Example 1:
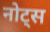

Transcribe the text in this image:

नोट्स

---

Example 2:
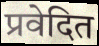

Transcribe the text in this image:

प्रवेदित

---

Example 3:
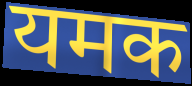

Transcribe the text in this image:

यमक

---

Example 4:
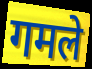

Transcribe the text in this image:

गमले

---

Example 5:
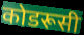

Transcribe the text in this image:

कोडरूसी